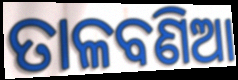
ତାଳବଣିଆ